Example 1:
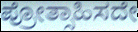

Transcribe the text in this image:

ಪ್ರೋತ್ಸಾಹಿಸದೇ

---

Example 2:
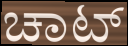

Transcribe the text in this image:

ಚಾಟ್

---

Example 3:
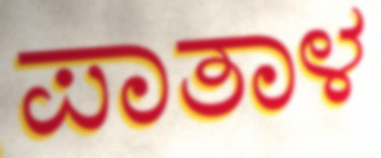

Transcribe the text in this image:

ಪಾತಾಳ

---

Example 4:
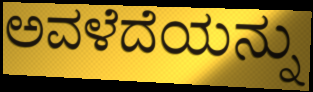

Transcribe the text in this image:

ಅವಳೆದೆಯನ್ನು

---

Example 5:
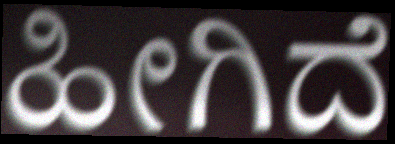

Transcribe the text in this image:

ಹೀಗಿದೆ